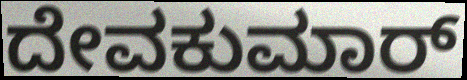
ದೇವಕುಮಾರ್